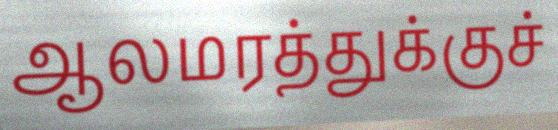
ஆலமரத்துக்குச்